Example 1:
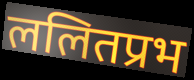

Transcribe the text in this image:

ललितप्रभ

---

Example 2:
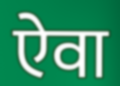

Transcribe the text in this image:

ऐवा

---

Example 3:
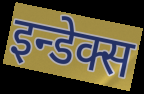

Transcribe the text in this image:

इन्डेक्स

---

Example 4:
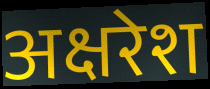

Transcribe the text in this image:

अक्षरेश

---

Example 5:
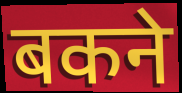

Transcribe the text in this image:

बकने